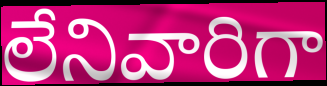
లేనివారిగా